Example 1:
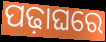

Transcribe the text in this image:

ପଢ଼ାଘରେ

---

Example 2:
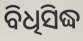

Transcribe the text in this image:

ବିଧିସିଦ୍ଧ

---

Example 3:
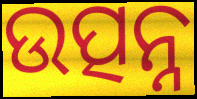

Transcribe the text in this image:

ଉତ୍ପନ୍ନ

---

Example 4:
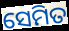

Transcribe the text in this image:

ସେମିତ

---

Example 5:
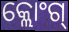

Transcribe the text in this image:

କ୍ଲୋଂଗ୍